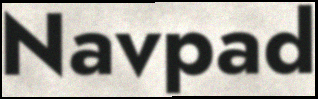
Navpad